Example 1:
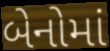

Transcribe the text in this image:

બેનોમાં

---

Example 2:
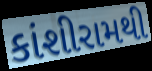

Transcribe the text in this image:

કાંશીરામથી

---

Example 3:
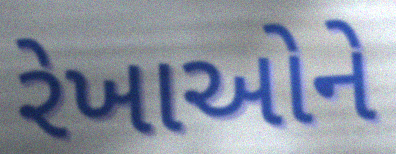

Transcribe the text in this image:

રેખાઓને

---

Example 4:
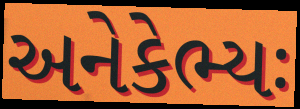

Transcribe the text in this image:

અનેકેભ્યઃ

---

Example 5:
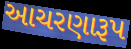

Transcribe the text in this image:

આચરણારૂપ